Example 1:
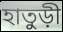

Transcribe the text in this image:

হাতুড়ী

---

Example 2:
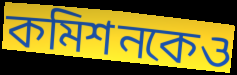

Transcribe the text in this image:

কমিশনকেও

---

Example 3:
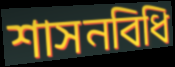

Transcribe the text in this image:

শাসনবিধি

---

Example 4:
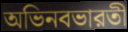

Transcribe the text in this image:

অভিনবভারতী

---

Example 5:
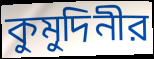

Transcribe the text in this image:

কুমুদিনীর